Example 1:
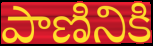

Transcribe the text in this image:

పాణినికి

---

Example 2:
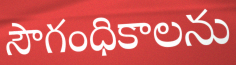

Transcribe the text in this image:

సౌగంధికాలను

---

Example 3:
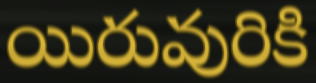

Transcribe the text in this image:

యిరువురికి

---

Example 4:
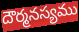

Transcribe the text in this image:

దౌర్మనస్యము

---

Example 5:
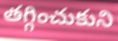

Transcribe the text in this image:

తగ్గించుకుని